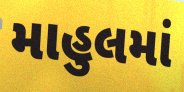
માહુલમાં